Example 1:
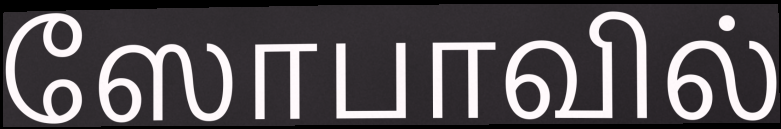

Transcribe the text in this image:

ஸோபாவில்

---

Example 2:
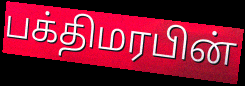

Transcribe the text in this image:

பக்திமரபின்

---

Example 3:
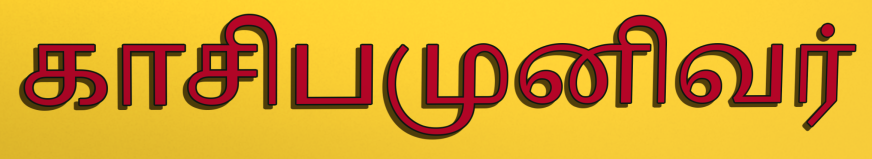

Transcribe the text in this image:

காசிபமுனிவர்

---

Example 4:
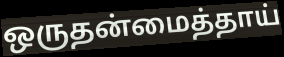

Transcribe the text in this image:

ஒருதன்மைத்தாய்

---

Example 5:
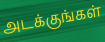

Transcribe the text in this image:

அடக்குங்கள்